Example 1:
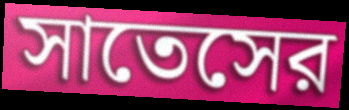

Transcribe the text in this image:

সাতেসের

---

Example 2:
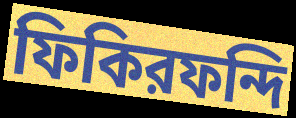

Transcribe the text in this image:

ফিকিরফন্দি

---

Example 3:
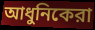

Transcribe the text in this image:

আধুনিকেরা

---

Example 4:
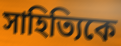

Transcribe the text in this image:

সাহিত্যিকে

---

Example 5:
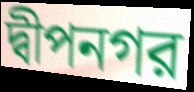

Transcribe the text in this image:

দ্বীপনগর